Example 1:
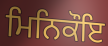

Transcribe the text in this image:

ਮਿਨਿਕੌਇ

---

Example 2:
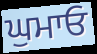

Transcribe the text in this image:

ਘੁਮਾਓ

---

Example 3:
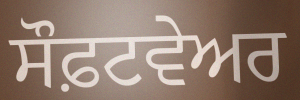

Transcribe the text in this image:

ਸੌਫ਼ਟਵੇਅਰ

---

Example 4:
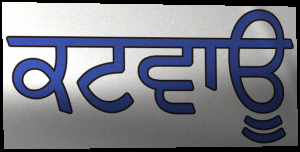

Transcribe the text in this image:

ਕਟਵਾਊ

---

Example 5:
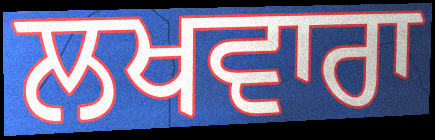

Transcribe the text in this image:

ਲਖਵਾਰਾ